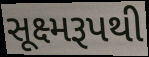
સૂક્ષ્મરૂપથી